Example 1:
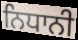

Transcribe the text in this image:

ਨਿਧਾਨੀ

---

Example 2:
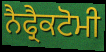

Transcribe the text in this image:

ਨੈਫ੍ਰੈਕਟੋਮੀ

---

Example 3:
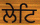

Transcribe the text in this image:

ਲੇਟਿ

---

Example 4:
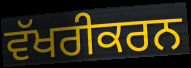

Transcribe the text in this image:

ਵੱਖਰੀਕਰਨ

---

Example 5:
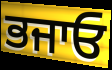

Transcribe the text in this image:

ਭਜਾਓ